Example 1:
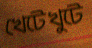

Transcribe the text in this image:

খেটেখুটে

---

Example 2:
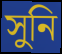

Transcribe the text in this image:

সুনি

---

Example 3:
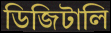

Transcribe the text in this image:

ডিজিটালি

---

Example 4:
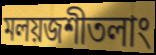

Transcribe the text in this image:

মলয়জশীতলাং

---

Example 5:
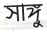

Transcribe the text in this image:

সাঙ্গু